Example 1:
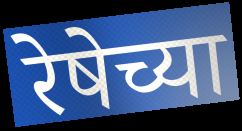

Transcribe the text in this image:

रेषेच्या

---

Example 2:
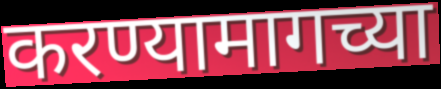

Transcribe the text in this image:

करण्यामागच्या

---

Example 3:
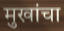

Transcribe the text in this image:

मुखांचा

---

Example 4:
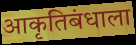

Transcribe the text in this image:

आकृतिबंधाला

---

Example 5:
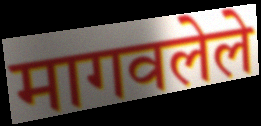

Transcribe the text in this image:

मागवलेले